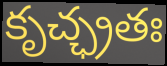
కృచ్ఛ్రతః